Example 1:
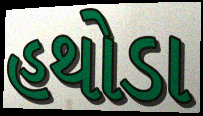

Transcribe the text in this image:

હથોડા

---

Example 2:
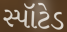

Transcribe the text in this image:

સ્પૉટેડ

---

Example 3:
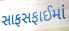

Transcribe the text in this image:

સાફસફાઈમાં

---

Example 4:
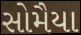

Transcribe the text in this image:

સોમૈયા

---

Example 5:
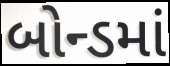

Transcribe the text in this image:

બોન્ડમાં